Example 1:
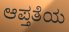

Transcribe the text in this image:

ಆಪ್ತತೆಯ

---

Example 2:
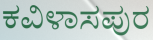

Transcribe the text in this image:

ಕವಿಳಾಸಪುರ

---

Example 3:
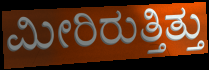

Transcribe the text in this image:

ಮೀರಿರುತ್ತಿತ್ತು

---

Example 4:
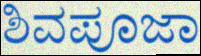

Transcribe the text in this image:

ಶಿವಪೂಜಾ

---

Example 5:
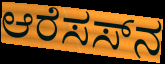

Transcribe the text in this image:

ಆರೆಸಸ್‌ನ